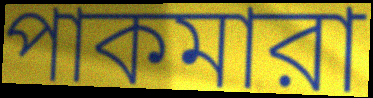
পাকমারা